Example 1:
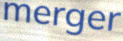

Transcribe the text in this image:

merger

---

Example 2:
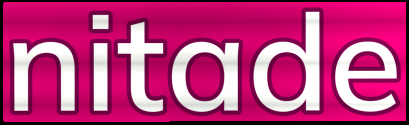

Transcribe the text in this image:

nitade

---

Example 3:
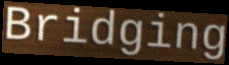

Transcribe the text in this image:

Bridging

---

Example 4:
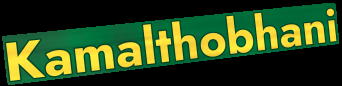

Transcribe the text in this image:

Kamalthobhani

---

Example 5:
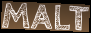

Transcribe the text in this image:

MALT